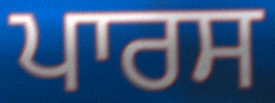
ਪਾਰਸ